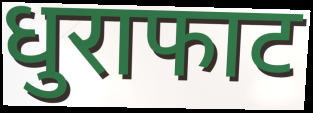
धुराफाट